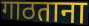
गाठताना